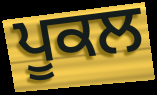
ਪੂਕਲ